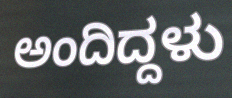
ಅಂದಿದ್ದಳು